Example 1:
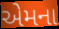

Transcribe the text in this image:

એમના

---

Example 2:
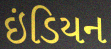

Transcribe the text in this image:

ઇંડિયન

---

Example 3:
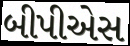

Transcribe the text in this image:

બીપીએસ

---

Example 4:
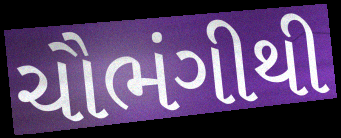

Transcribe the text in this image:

ચૌભંગીથી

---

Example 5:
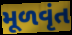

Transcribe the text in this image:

મૂળવૃંત